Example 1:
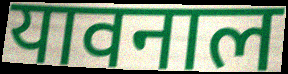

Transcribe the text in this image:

यावनाल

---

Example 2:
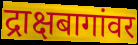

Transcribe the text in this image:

द्राक्षबागांवर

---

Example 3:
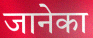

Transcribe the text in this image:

जानेका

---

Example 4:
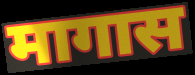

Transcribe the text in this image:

मागास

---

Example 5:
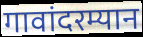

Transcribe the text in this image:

गावांदरम्यान